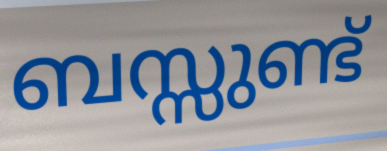
ബസ്സുണ്ട്